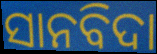
ସାନବିଦା